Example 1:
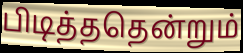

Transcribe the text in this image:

பிடித்ததென்றும்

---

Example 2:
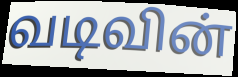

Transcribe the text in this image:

வடிவின்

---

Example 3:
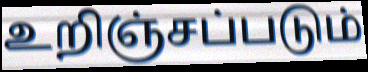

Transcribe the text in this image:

உறிஞ்சப்படும்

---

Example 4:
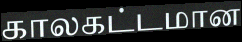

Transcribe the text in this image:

காலகட்டமான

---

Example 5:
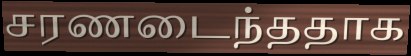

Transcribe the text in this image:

சரணடைந்ததாக